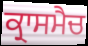
ਕ੍ਰਾਸਮੈਚ